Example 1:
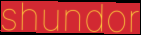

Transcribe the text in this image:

shundor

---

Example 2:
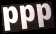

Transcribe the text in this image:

ppp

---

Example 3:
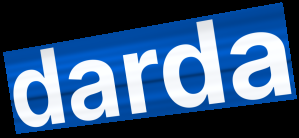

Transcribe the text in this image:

darda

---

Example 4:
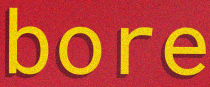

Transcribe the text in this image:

bore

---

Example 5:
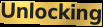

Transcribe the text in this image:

Unlocking